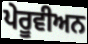
ਪੇਰੂਵੀਅਨ